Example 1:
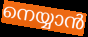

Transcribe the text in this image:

നെയ്യാൻ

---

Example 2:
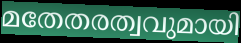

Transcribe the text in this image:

മതേതരത്വവുമായി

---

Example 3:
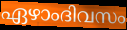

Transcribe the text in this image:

ഏഴാംദിവസം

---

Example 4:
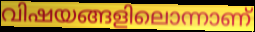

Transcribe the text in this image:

വിഷയങ്ങളിലൊന്നാണ്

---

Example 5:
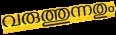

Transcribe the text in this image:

വരുത്തുന്നതും